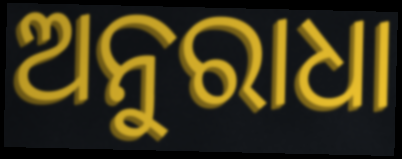
ଅନୁରାଧା